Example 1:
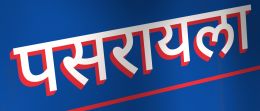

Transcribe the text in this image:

पसरायला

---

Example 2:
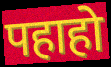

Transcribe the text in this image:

पहाहो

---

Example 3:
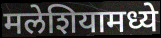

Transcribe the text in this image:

मलेशियामध्ये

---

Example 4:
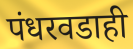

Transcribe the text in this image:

पंधरवडाही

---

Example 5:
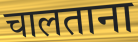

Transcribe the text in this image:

चालताना